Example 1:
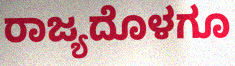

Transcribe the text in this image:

ರಾಜ್ಯದೊಳಗೂ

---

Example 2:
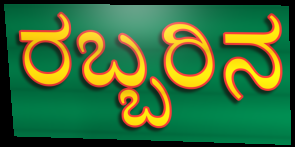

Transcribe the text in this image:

ರಬ್ಬರಿನ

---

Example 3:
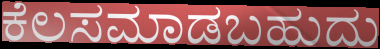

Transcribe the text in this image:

ಕೆಲಸಮಾಡಬಹುದು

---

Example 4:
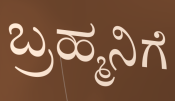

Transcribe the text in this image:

ಬ್ರಹ್ಮನಿಗೆ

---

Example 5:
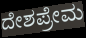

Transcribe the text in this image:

ದೇಶಪ್ರೇಮ